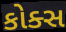
કોક્સ